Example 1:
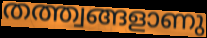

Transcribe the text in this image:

തത്ത്വങ്ങളാണു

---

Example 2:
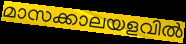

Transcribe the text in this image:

മാസക്കാലയളവിൽ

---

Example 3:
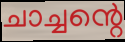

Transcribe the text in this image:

ചാച്ചന്റെ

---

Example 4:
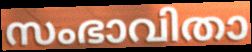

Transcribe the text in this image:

സംഭാവിതാ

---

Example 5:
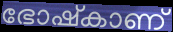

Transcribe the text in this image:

ഭോഷ്കാണ്